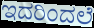
ಇದರಿಂದಲೆ